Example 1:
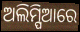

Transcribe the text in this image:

ଅଲିମ୍ପିଆରେ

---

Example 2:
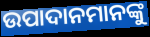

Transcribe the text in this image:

ଉପାଦାନମାନଙ୍କୁ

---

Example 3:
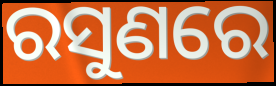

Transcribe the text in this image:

ରସୁଣରେ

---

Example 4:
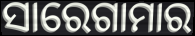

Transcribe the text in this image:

ସାରେଗାମାର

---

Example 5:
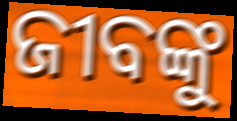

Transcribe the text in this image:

ଜୀବଙ୍କୁ